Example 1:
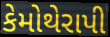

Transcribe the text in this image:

કેમોથેરાપી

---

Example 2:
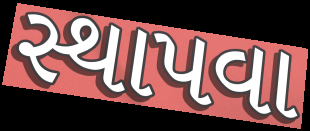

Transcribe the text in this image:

સ્થાપવા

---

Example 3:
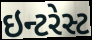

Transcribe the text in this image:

ઇન્ટરેસ્ટ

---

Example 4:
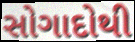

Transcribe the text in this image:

સોગાદોથી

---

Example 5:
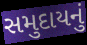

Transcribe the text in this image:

સમુદાયનું